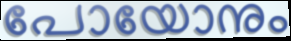
പോയോനും